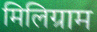
मिलिग्राम